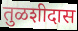
तुळशीदास